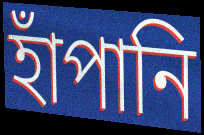
হাঁপানি